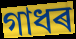
গাধৰ